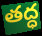
తద్ధ